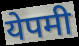
येपमी